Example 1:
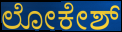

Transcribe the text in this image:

ಲೋಕೇಶ್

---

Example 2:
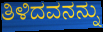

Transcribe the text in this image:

ತಿಳಿದವನನ್ನು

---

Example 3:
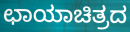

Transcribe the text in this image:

ಛಾಯಾಚಿತ್ರದ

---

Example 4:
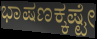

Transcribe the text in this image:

ಭಾಷಣಕ್ಕಷ್ಟೇ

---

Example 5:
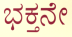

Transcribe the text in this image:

ಭಕ್ತನೇ